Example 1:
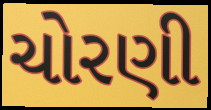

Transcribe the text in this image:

ચોરણી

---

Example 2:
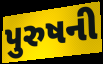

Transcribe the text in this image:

પુરુષની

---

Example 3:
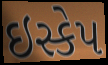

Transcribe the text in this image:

ઇસ્કેપ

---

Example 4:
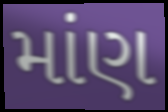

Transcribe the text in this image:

માંણ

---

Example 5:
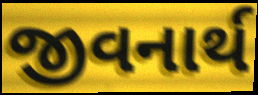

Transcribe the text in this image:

જીવનાર્થ